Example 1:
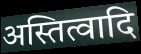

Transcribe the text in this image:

अस्तित्वादि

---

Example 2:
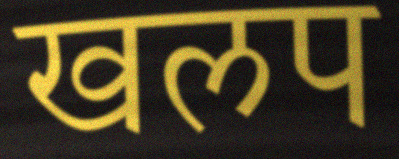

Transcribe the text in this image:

खलप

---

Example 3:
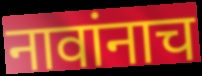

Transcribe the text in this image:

नावांनाच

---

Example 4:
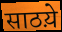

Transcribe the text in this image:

साठय़े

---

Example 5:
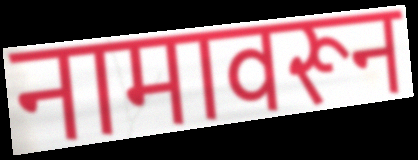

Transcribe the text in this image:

नामावरून